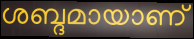
ശബ്ദമായാണ്